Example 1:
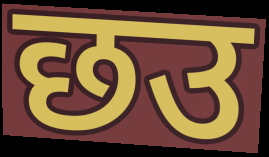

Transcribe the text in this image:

छउ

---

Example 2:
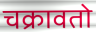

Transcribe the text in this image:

चक्रावतो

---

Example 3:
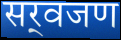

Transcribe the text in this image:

सर्वजण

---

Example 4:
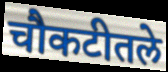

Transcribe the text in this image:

चौकटीतले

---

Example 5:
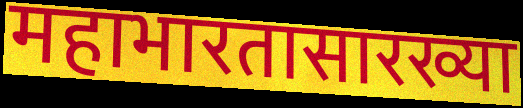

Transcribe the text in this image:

महाभारतासारख्या